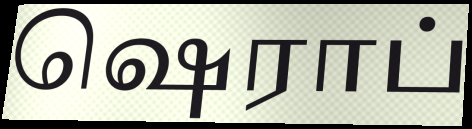
ஷெராப்